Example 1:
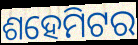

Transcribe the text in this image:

ଶହେମିଟର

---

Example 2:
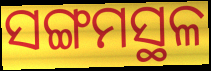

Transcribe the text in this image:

ସଙ୍ଗମସ୍ଥଳ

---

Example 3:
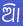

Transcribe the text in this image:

ଆି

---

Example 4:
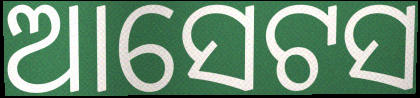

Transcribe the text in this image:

ଆସେଟସ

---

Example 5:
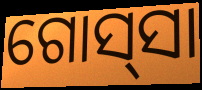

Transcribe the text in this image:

ଗୋସ୍‌ସା